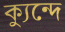
ক্যুন্দে